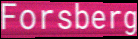
Forsberg